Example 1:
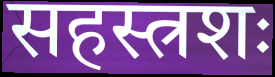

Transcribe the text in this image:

सहस्त्रशः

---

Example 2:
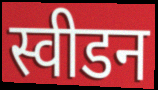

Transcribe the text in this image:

स्वीडन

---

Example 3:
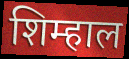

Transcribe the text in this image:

शिम्हाल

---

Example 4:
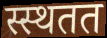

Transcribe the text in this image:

स्स्थतत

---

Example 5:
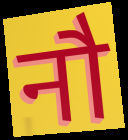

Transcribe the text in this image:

नौ